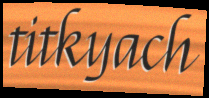
titkyach